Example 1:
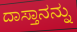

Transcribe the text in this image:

ದಾಸ್ತಾನನ್ನು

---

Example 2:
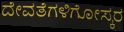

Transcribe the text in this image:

ದೇವತೆಗಳಿಗೋಸ್ಕರ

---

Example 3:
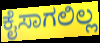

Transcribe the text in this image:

ಕೈಸಾಗಲಿಲ್ಲ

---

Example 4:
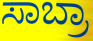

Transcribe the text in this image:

ಸಾಬ್ರಾ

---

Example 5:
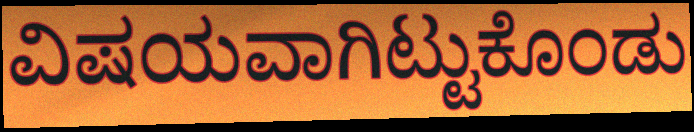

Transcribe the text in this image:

ವಿಷಯವಾಗಿಟ್ಟುಕೊಂಡು